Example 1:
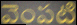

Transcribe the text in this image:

వెంపటి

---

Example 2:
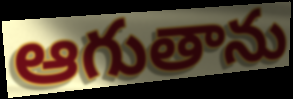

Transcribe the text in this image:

ఆగుతాను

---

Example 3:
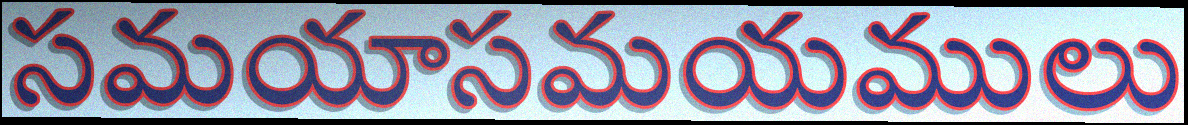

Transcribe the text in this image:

సమయాసమయములు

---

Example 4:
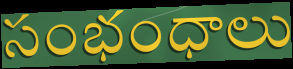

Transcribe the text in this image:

సంభంధాలు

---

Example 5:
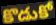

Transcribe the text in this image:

కొడుకో